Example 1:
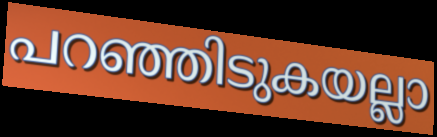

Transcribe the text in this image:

പറഞ്ഞിടുകയല്ലാ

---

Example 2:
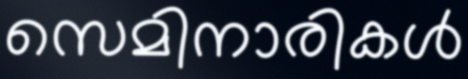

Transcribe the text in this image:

സെമിനാരികൾ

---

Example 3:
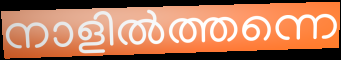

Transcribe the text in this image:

നാളിൽത്തന്നെ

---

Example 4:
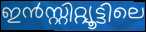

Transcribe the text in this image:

ഇൻസ്റ്റിറ്റ്യൂട്ടിലെ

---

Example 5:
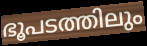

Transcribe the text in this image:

ഭൂപടത്തിലും